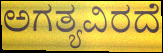
ಅಗತ್ಯವಿರದೆ